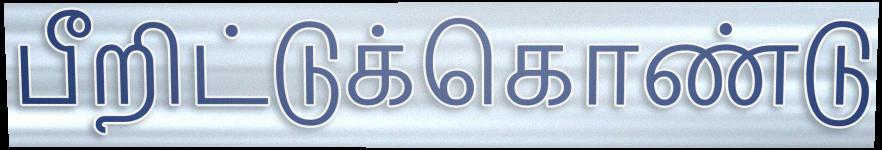
பீறிட்டுக்கொண்டு